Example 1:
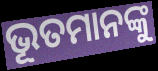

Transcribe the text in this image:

ଭୂତମାନଙ୍କୁ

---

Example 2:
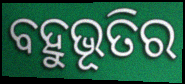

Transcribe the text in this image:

ବହୁଭୂତିର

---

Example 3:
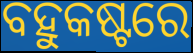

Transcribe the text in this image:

ବହୁକଷ୍ଟରେ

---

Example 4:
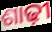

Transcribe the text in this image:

ଶାଢ଼ୀ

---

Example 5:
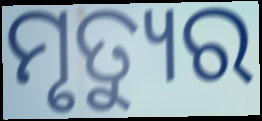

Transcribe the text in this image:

ମୃତ୍ୟୁର